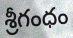
శ్రీగంధం